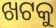
ଖଟକୁ